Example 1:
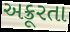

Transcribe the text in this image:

અક્રૂરતા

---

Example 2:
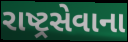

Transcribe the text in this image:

રાષ્ટ્રસેવાના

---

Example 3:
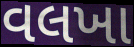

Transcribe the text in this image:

વલખા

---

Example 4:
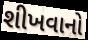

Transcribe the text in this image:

શીખવાનો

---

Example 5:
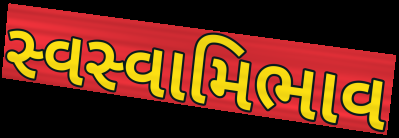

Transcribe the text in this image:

સ્વસ્વામિભાવ